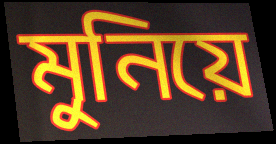
মুনিয়ে